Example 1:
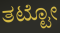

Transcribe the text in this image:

ತಟ್ಟೋ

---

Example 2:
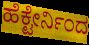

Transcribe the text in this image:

ಹೆಕ್ಟೇರ್ನಿಂದ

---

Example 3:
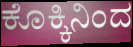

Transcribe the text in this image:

ಕೊಕ್ಕಿನಿಂದ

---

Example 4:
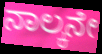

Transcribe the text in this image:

ನಾಲ್ಕನೇ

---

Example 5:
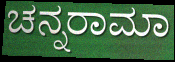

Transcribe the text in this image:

ಚನ್ನರಾಮಾ